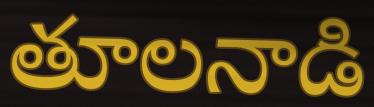
తూలనాడి